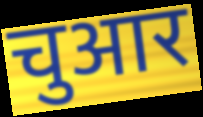
चुआर